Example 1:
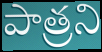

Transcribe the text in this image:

పాత్రని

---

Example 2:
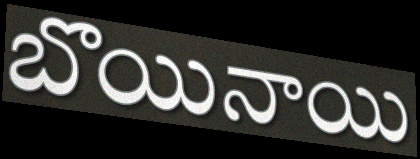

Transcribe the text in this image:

బొయినాయి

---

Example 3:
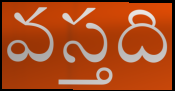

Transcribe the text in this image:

వస్తది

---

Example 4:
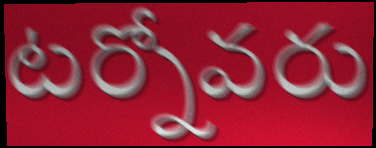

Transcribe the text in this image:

టర్నోవరు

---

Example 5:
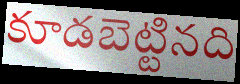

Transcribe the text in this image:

కూడబెట్టినది